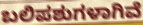
ಬಲಿಪಶುಗಳಾಗಿವೆ